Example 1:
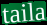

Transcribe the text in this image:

taila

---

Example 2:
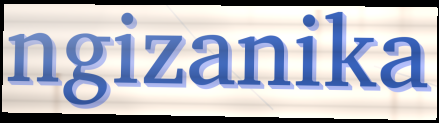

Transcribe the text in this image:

ngizanika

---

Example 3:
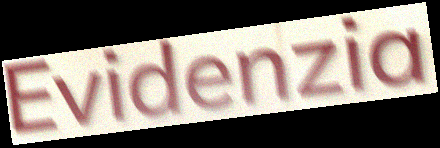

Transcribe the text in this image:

Evidenzia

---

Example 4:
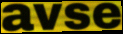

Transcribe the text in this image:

avse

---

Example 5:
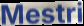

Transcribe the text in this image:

Mestri